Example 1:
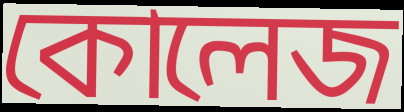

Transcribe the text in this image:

কোলেজ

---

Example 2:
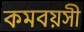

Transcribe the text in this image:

কমবয়সী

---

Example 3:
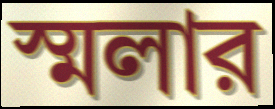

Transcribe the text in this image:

স্মলার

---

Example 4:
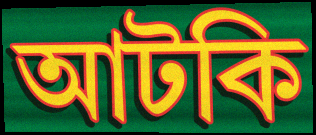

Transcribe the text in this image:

আটকি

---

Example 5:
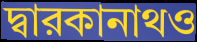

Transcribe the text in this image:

দ্বারকানাথও